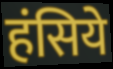
हंसिये